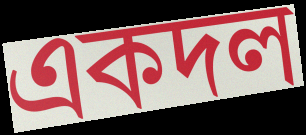
একদল